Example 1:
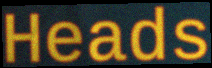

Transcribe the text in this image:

Heads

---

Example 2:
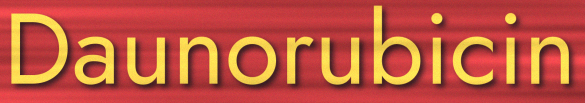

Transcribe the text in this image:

Daunorubicin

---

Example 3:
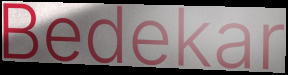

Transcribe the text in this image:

Bedekar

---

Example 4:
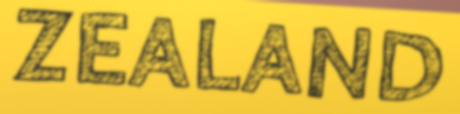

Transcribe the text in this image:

ZEALAND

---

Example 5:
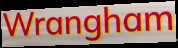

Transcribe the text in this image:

Wrangham